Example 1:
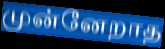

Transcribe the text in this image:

முன்னேறாத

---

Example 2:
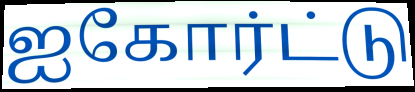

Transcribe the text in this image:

ஐகோர்ட்டு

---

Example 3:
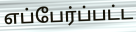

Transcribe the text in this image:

எப்பேர்ப்பட்ட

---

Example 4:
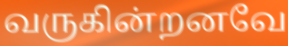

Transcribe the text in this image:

வருகின்றனவே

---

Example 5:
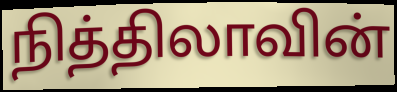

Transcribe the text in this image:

நித்திலாவின்